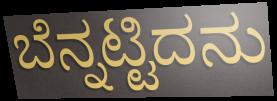
ಬೆನ್ನಟ್ಟಿದನು